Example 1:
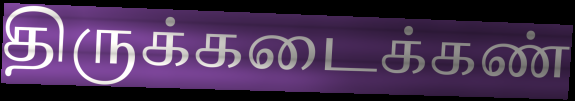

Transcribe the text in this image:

திருக்கடைக்கண்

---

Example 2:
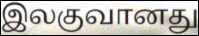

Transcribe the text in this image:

இலகுவானது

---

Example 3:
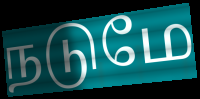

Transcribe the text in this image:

நடுமே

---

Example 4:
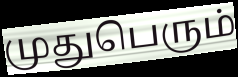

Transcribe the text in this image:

முதுபெரும்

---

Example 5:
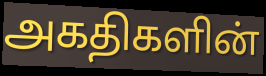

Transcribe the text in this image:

அகதிகளின்